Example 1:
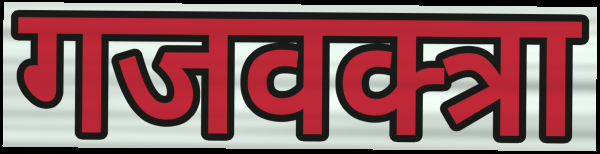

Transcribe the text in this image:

गजवक्त्रा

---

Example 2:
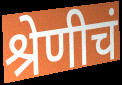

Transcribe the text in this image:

श्रेणीचं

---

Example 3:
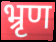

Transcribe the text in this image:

भ्रृण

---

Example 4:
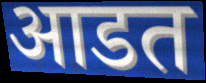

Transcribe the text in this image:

आडत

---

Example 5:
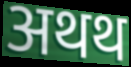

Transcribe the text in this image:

अथथ